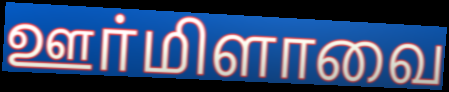
ஊர்மிளாவை